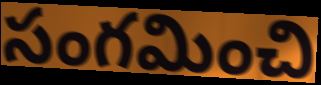
సంగమించి